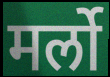
मर्लो